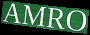
AMRO